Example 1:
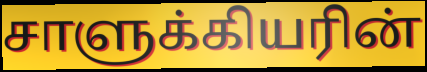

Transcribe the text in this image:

சாளுக்கியரின்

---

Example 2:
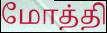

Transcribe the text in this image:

மோத்தி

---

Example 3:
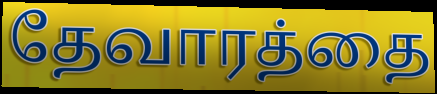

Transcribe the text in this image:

தேவாரத்தை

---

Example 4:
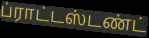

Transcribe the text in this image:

ப்ராட்டஸ்டண்ட்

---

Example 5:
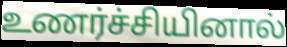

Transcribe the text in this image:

உணர்ச்சியினால்